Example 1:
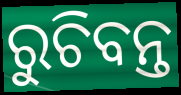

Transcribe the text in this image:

ରୁଚିବନ୍ତ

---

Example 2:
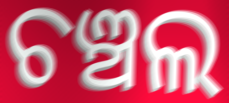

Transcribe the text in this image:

ଚଞ୍ଚଲ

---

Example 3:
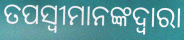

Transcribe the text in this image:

ତପସ୍ୱୀମାନଙ୍କଦ୍ୱାରା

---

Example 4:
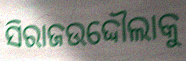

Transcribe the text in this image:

ସିରାଜଉଦ୍ଦୌଲାକୁ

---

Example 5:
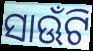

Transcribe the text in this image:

ସାଊଁଟି